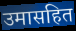
उमासहित